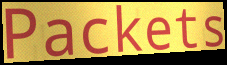
Packets